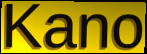
Kano